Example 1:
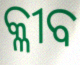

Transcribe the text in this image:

କ୍ଳୀବ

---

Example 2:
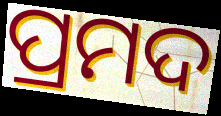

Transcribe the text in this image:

ପ୍ରମଦ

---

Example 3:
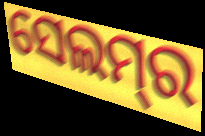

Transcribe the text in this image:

ସେଲମ୍‌ର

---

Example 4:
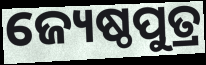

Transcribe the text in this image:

ଜ୍ୟେଷ୍ଠପୁତ୍ର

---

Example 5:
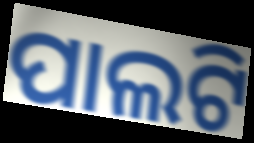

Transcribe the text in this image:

ପାଲଟି